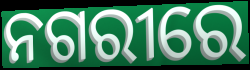
ନଗରୀରେ